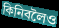
কিনিবলৈও